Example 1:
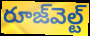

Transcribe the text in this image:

రూజ్‌వెల్ట్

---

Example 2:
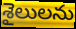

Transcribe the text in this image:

శైలులను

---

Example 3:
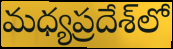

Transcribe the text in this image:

మధ్యప్రదేశ్‌లో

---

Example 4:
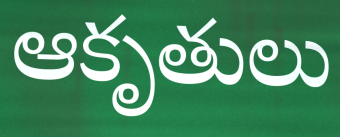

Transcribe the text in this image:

ఆకృతులు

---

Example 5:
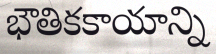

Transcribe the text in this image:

భౌతికకాయాన్ని